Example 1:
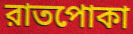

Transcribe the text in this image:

রাতপোকা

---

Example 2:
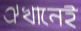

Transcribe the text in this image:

ঐখানেই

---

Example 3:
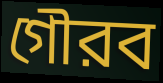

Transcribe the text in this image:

গৌরব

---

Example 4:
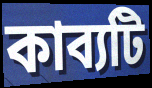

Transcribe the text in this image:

কাব্যটি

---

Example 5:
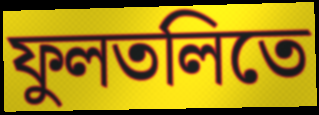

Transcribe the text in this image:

ফুলতলিতে